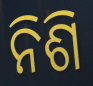
ନିଶି